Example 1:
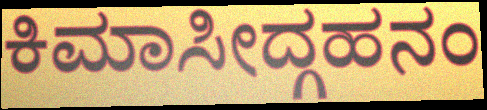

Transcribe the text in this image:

ಕಿಮಾಸೀದ್ಗಹನಂ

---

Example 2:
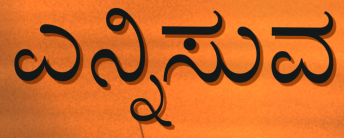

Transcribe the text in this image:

ಎನ್ನಿಸುವ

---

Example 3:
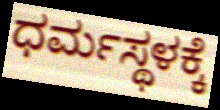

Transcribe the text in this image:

ಧರ್ಮಸ್ಥಳಕ್ಕೆ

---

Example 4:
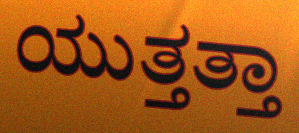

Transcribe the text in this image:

ಯುತ್ತತ್ತಾ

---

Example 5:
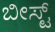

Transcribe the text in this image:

ಬೀಸ್ಟ್